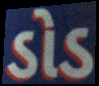
ડોડ